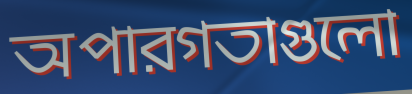
অপারগতাগুলো